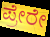
ಪ್ರೇರೇ